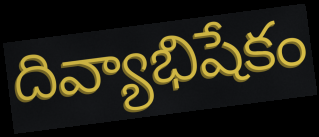
దివ్యాభిషేకం